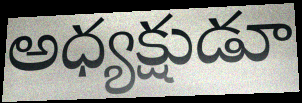
అధ్యక్షుడూ